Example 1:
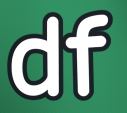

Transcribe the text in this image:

df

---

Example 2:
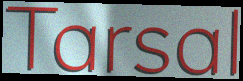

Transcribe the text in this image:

Tarsal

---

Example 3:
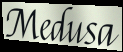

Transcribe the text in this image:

Medusa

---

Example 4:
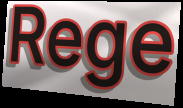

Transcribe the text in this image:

Rege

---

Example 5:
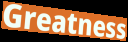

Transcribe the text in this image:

Greatness